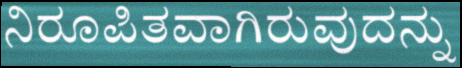
ನಿರೂಪಿತವಾಗಿರುವುದನ್ನು